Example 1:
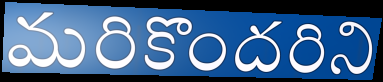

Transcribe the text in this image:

మరికొందరిని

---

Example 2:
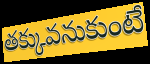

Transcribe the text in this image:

తక్కువనుకుంటే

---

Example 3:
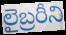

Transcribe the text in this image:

లైబ్రరీని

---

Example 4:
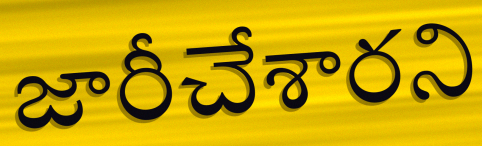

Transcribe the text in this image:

జారీచేశారని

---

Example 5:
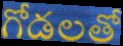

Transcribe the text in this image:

గోడలతో